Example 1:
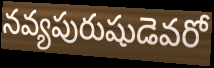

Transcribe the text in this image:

నవ్యపురుషుడెవరో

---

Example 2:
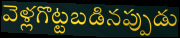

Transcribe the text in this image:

వెళ్లగొట్టబడినప్పుడు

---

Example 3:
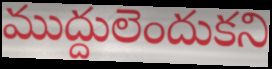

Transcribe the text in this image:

ముద్దులెందుకని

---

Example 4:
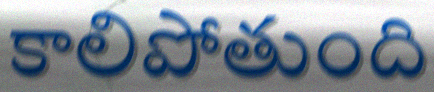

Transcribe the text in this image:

కాలిపోతుంది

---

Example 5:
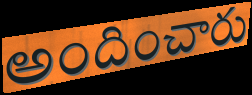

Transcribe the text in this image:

అందించారు